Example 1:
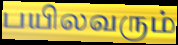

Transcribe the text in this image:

பயிலவரும்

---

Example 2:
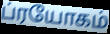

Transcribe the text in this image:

ப்ரயோகம்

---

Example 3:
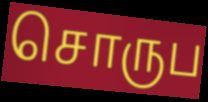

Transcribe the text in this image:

சொருப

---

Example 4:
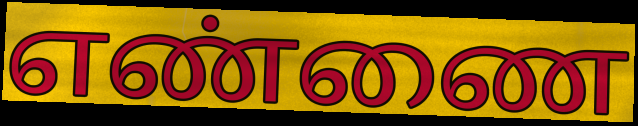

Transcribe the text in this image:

எண்ணை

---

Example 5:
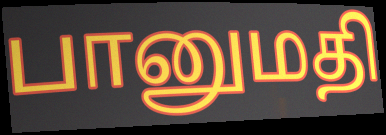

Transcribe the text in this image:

பானுமதி